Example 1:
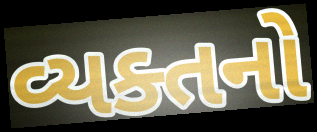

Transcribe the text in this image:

વ્યક્તનો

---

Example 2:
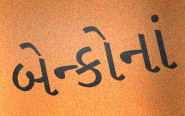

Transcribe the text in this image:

બેન્કોનાં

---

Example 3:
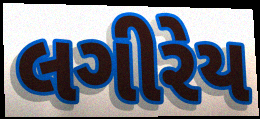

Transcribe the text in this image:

લગીરેય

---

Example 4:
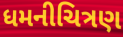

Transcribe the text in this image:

ધમનીચિત્રણ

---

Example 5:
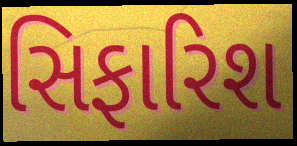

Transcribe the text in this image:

સિફારિશ